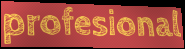
profesional